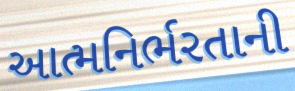
આત્મનિર્ભરતાની